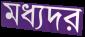
মধ্যদর